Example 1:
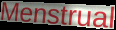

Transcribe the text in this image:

Menstrual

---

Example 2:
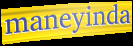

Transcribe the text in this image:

maneyinda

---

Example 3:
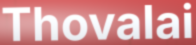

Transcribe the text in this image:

Thovalai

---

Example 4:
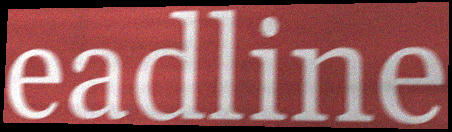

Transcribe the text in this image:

eadline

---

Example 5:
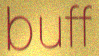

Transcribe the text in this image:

buff